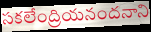
సకలేంద్రియనందనాని